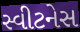
સ્વીટનેસ